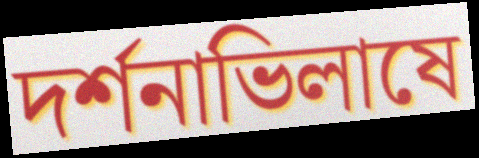
দর্শনাভিলাষে